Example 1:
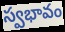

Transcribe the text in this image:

స్వభావం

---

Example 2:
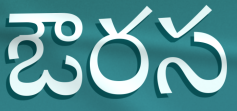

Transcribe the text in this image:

ఔరస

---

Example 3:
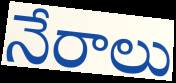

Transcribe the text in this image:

నేరాలు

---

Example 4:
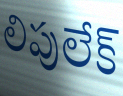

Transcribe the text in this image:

లిపులేక్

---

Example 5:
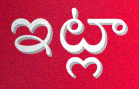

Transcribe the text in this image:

ఇట్లా